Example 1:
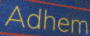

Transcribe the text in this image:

Adhem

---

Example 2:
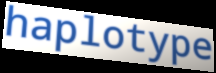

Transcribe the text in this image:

haplotype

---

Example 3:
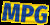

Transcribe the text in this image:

MPG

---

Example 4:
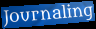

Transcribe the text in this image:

Journaling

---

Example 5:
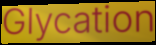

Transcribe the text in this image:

Glycation